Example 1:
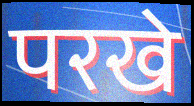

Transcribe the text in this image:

परखे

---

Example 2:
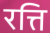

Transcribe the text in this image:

रत्ति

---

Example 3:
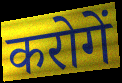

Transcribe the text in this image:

करोगें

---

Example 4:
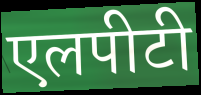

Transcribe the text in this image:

एलपीटी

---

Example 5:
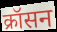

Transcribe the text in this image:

क्रॉसन